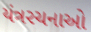
યંત્રરચનાઓ